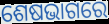
ଶେଷଭାଗରେ